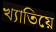
খ্যাতিয়ে